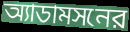
অ্যাডামসনের